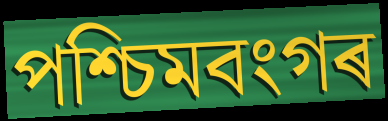
পশ্চিমবংগৰ